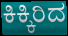
ಕಿಕ್ಕಿರಿದ